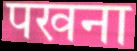
पखना